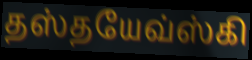
தஸ்தயேவ்ஸ்கி